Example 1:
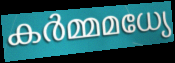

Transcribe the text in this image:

കർമ്മമധ്യേ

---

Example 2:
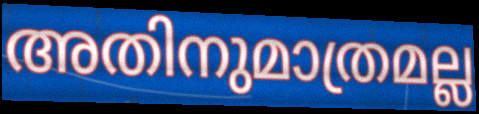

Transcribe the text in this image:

അതിനുമാത്രമല്ല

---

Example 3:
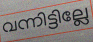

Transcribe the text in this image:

വന്നിട്ടില്ലേ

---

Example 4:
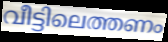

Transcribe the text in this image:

വീട്ടിലെത്തണം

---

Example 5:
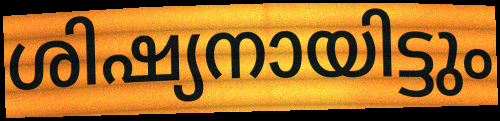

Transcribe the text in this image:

ശിഷ്യനായിട്ടും